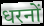
धरनों